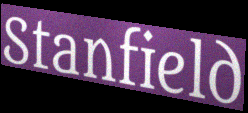
Stanfield